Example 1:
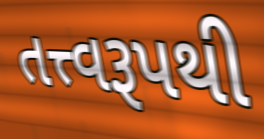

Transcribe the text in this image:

તત્ત્વરૂપથી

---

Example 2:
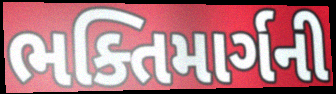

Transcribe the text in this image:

ભક્તિમાર્ગની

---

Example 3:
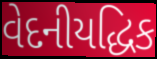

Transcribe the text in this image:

વેદનીયદ્ધિક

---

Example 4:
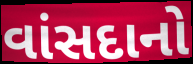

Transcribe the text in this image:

વાંસદાનો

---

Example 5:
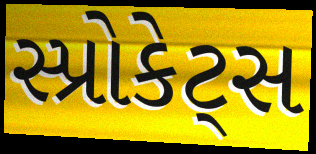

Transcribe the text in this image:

સ્પ્રોકેટ્સ